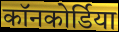
कॉनकोर्डिया